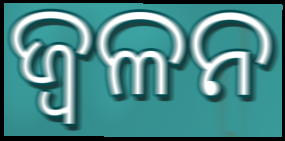
ଜ୍ଵଳନ